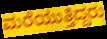
ಮರೆಯುತ್ತಿದ್ದರು